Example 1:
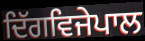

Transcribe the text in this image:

ਦਿੱਗਵਿਜੇਪਾਲ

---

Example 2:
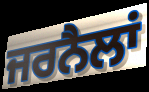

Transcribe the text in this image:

ਜਰਨੈਲਾਂ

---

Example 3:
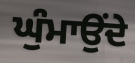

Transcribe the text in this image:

ਘੁੰਮਾਉਂਦੇ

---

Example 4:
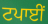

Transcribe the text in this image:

ਟਪਾਈਂ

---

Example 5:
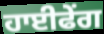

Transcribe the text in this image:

ਹਾਈਫੇਂਗ